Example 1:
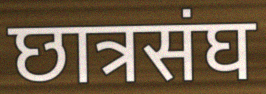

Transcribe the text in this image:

छात्रसंघ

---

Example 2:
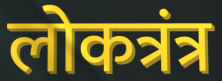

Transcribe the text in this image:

लोकत्रंत्र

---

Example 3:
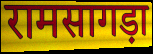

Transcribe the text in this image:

रामसागड़ा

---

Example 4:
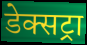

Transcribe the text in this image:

डेक्सट्रा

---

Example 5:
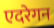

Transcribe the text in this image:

एदरेगन